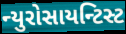
ન્યુરોસાયન્ટિસ્ટ